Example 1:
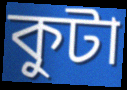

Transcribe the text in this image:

কুটা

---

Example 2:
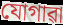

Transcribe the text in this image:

যোগাৱা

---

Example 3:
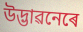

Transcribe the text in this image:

উদ্ভাৱনেৰে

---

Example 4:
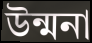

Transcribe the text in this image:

উন্মনা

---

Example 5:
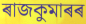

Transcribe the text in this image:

ৰাজকুমাৰৰ